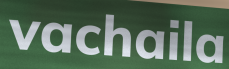
vachaila